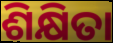
ଶିକ୍ଷିତା